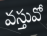
వస్తువో